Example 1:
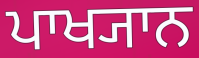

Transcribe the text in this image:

ਪਾਖ੍ਯਾਨ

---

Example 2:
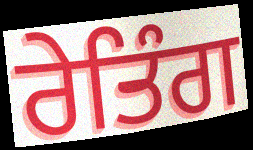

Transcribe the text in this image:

ਰੇਤਿੰਗ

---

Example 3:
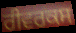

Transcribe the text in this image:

ਰੀਵਰਕਸ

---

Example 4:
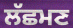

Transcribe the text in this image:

ਲੱਛਮਣ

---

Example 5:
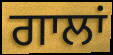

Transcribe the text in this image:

ਗਾਲਾਂ